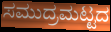
ಸಮುದ್ರಮಟ್ಟದ